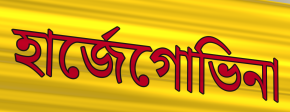
হাৰ্জেগোভিনা